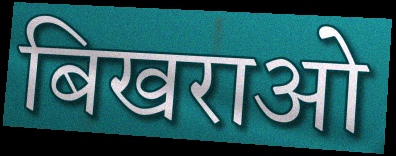
बिखराओ